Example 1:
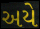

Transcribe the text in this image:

અયે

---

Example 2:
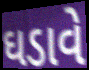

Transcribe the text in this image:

ઘડાવે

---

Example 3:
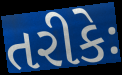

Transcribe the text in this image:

તરીકેઃ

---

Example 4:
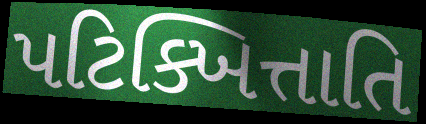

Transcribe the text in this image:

પટિક્ખિત્તાતિ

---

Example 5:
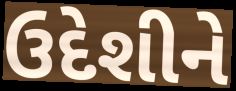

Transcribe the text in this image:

ઉદેશીને